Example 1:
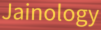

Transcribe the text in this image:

Jainology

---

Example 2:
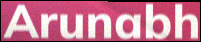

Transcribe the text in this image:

Arunabh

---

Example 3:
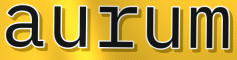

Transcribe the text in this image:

aurum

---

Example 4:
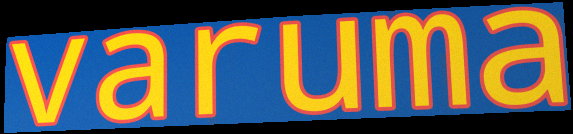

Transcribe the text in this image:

varuma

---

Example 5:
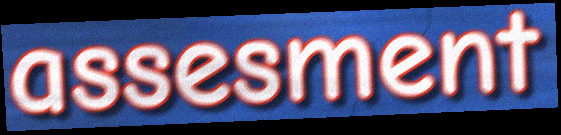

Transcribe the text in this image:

assesment